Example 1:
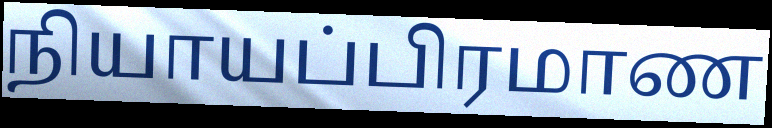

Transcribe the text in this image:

நியாயப்பிரமாண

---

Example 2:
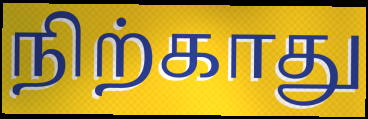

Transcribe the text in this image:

நிற்காது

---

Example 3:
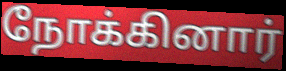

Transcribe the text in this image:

நோக்கினார்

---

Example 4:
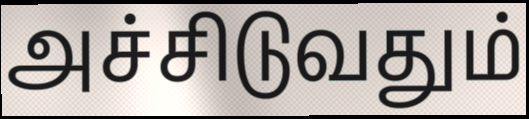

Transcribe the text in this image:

அச்சிடுவதும்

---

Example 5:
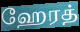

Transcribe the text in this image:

ஹேரத்